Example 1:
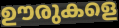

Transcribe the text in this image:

ഊരുകളെ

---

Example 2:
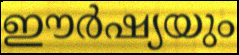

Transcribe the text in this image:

ഈർഷ്യയും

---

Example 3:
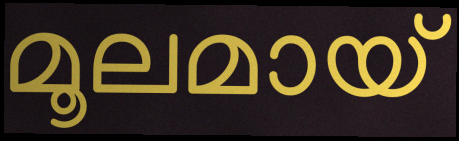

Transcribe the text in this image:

മൂലമായ്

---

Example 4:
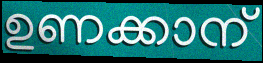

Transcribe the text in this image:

ഉണക്കാന്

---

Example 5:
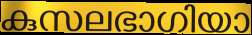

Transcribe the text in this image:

കുസലഭാഗിയാ